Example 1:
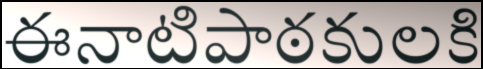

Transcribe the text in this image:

ఈనాటిపాఠకులకి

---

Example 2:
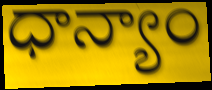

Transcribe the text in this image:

ధాన్యాం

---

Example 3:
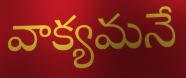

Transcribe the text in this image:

వాక్యమనే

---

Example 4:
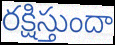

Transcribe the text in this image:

రక్షిస్తుందా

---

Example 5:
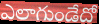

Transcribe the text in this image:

ఎలాగుండేదో